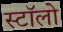
स्टॉलो